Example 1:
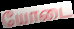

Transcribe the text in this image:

யோடை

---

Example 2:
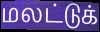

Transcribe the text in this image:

மலட்டுக்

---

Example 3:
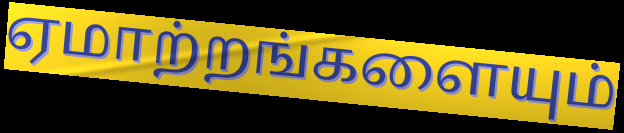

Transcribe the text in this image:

ஏமாற்றங்களையும்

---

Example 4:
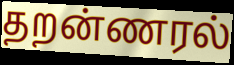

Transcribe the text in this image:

தறன்ணரல்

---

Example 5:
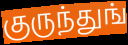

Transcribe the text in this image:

குருந்துங்